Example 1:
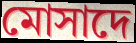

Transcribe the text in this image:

মোসাদে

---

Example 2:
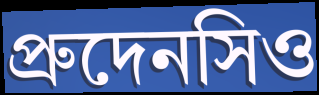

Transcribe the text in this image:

প্রুদেনসিও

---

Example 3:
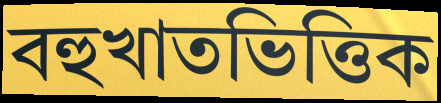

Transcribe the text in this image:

বহুখাতভিত্তিক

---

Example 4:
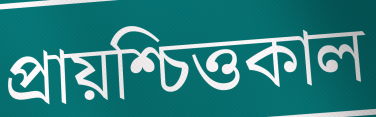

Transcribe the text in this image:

প্রায়শ্চিত্তকাল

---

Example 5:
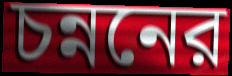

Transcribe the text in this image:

চন্ননের